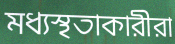
মধ্যস্থতাকারীরা